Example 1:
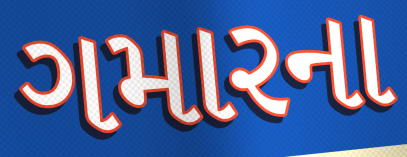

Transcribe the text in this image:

ગમારના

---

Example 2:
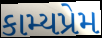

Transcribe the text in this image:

કામ્યપ્રેમ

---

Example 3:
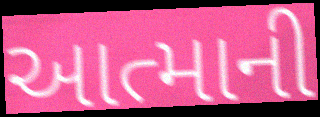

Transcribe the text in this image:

આત્માની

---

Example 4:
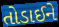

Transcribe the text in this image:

તોડાઈને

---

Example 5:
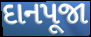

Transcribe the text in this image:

દાનપૂજા